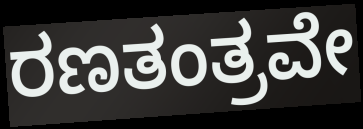
ರಣತಂತ್ರವೇ